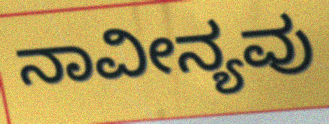
ನಾವೀನ್ಯವು